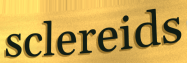
sclereids